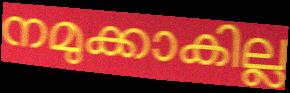
നമുക്കാകില്ല